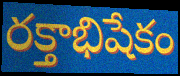
రక్తాభిషేకం